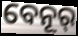
ବେନୂର୍